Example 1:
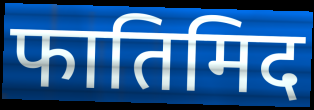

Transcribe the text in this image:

फातिमिद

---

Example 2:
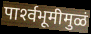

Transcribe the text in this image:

पार्श्वभूमीमुळं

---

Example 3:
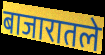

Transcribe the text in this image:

बाजारातले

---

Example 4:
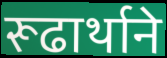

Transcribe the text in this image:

रूढार्थाने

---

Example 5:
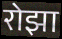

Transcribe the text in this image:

रोझा